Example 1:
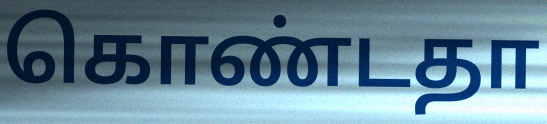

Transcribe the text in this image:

கொண்டதா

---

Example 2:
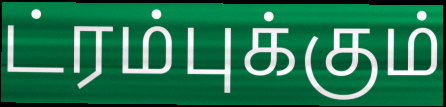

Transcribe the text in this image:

ட்ரம்புக்கும்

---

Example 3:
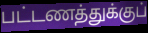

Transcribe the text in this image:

பட்டணத்துக்குப்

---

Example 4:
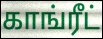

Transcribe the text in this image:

காங்ரீட்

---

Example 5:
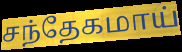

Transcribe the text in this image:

சந்தேகமாய்